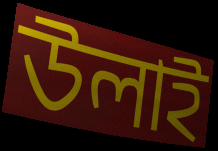
উলাই